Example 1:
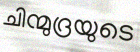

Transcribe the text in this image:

ചിന്മുദ്രയുടെ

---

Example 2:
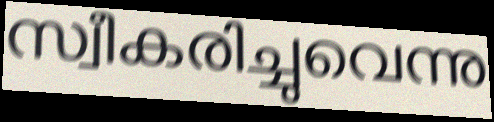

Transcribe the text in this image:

സ്വീകരിച്ചുവെന്നു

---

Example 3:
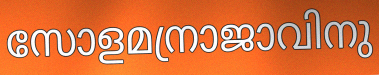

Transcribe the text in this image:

സോളമന്രാജാവിനു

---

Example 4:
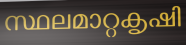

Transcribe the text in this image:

സ്ഥലമാറ്റകൃഷി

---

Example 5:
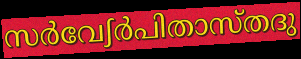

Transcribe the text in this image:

സർവേഽർപിതാസ്തദു